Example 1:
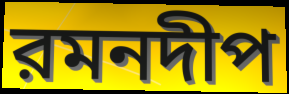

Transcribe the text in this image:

রমনদীপ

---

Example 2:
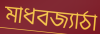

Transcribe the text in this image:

মাধবজ্যাঠা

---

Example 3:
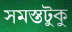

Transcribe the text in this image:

সমস্তটুকু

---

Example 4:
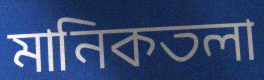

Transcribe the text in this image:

মানিকতলা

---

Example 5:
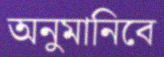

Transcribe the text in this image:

অনুমানিবে